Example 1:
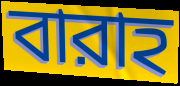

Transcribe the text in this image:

বারাহ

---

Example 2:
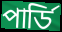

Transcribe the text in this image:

পার্ডি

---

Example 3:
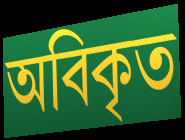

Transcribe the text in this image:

অবিকৃত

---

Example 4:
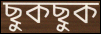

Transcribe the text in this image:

ছুকছুক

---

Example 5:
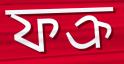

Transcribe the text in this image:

ফক্র